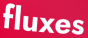
fluxes